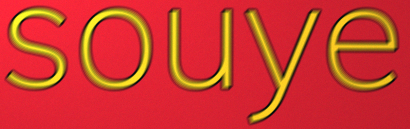
souye